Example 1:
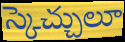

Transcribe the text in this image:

స్కెచ్చులూ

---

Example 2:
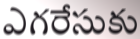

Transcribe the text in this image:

ఎగరేసుకు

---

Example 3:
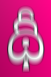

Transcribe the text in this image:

థీ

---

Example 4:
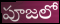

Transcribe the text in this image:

పూజలో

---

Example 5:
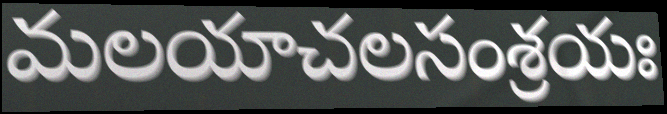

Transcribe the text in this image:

మలయాచలసంశ్రయః